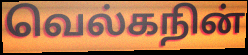
வெல்கநின்